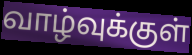
வாழ்வுக்குள்